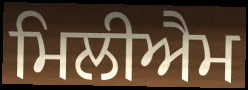
ਮਿਲੀਐਮ